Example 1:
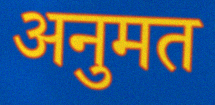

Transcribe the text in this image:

अनुमत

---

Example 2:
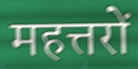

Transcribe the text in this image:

महत्तरों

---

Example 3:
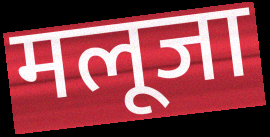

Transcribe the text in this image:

मलूजा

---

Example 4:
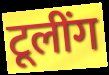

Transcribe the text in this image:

टूलींग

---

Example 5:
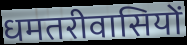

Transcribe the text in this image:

धमतरीवासियों